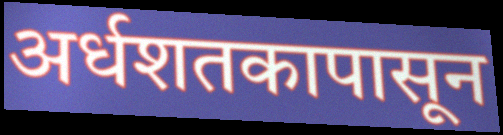
अर्धशतकापासून